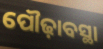
ପୌଢ଼ାବସ୍ଥା